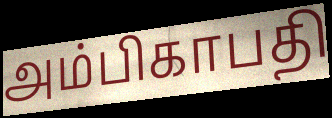
அம்பிகாபதி